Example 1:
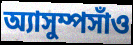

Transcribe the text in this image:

অ্যাসুম্পসাঁও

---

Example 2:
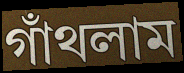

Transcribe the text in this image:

গাঁথলাম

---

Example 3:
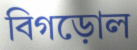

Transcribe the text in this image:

বিগড়োল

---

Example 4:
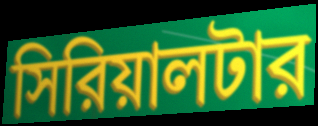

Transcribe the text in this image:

সিরিয়ালটার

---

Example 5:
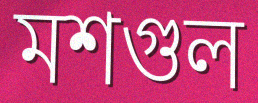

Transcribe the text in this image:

মশগুল